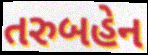
તરુબહેન